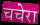
चचेरा